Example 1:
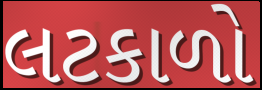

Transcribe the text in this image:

લટકાળો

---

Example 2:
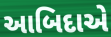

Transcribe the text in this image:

આબિદાએ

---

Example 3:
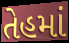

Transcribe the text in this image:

તેહમાં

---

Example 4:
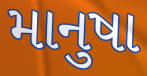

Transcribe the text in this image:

માનુષા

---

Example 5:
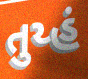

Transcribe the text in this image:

તુય્હં